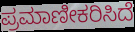
ಪ್ರಮಾಣೀಕರಿಸಿದೆ